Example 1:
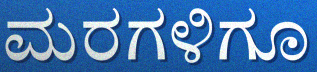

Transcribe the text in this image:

ಮರಗಳಿಗೂ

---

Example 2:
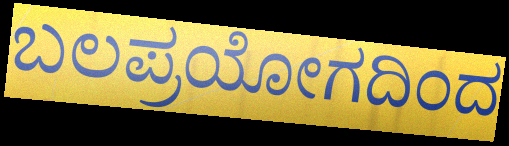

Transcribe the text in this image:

ಬಲಪ್ರಯೋಗದಿಂದ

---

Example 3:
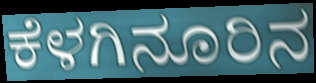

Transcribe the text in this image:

ಕೆಳಗಿನೂರಿನ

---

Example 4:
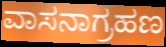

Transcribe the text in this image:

ವಾಸನಾಗ್ರಹಣ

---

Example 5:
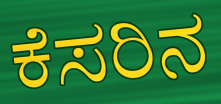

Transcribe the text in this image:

ಕೆಸರಿನ